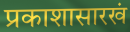
प्रकाशासारखं